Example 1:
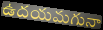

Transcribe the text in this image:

ఉదయమగునా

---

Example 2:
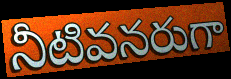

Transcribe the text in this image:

నీటివనరుగా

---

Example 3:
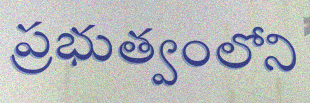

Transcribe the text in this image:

ప్రభుత్వంలోని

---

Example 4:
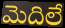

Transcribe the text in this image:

మెదిలే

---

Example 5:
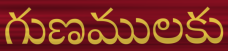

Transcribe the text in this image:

గుణములకు